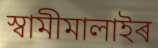
স্বামীমালাইৰ